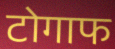
टोगाफ